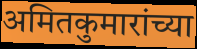
अमितकुमारांच्या